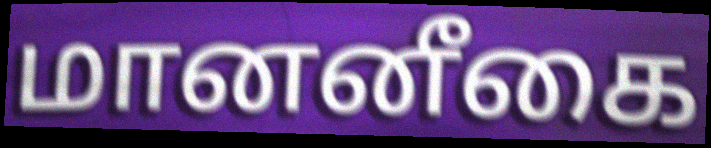
மானனீகை